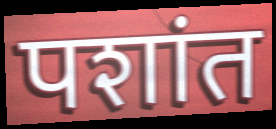
पशांत